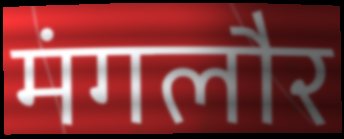
मंगलौर